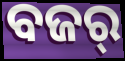
ବଜର୍